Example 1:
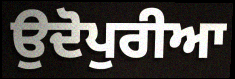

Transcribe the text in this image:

ਉਦੋਪੁਰੀਆ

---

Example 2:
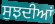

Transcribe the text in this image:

ਸੁਝਦੀਆਂ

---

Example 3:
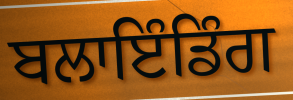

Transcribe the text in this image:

ਬਲਾਇੰਡਿੰਗ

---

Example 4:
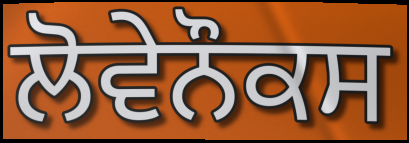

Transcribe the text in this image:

ਲੋਵੇਨੌਕਸ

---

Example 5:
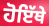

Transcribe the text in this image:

ਹੋਇੱਥੇ